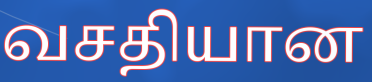
வசதியான